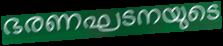
ഭരണഘടനയുടെ